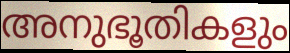
അനുഭൂതികളും